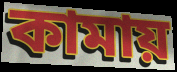
কামায়